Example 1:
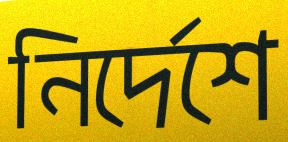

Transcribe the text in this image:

নিৰ্দেশে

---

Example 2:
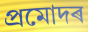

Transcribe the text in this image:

প্ৰমোদৰ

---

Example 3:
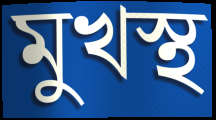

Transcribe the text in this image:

মুখস্থ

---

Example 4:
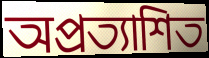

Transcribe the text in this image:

অপ্ৰত্যাশিত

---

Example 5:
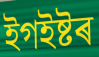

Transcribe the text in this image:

ইগইষ্টৰ